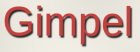
Gimpel